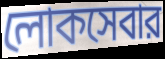
লোকসেবার